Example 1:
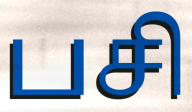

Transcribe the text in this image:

பசி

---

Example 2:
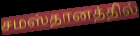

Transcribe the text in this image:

சமஸ்தானத்தில்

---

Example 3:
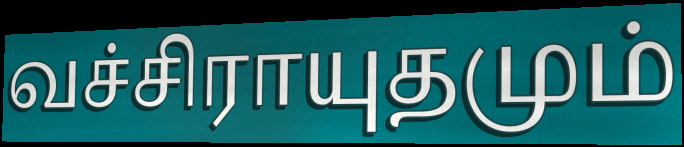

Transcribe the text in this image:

வச்சிராயுதமும்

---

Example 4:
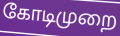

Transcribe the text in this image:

கோடிமுறை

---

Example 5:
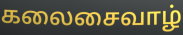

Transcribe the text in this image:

கலைசைவாழ்